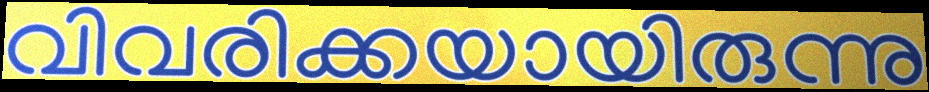
വിവരിക്കയായിരുന്നു